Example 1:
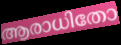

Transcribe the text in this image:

ആരാധിതോ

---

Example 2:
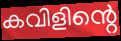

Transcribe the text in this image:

കവിളിന്റെ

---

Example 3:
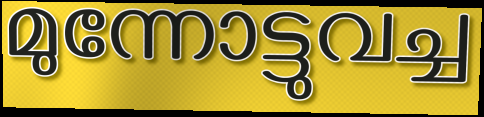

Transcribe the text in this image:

മുന്നോട്ടുവച്ച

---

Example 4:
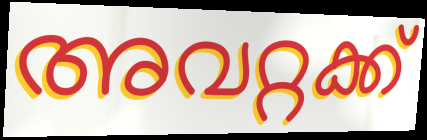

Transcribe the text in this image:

അവറ്റക്ക്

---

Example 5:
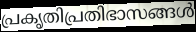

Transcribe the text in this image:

പ്രകൃതിപ്രതിഭാസങ്ങൾ